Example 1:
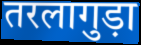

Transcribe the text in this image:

तरलागुड़ा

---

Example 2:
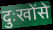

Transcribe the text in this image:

दुःखोंसे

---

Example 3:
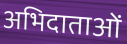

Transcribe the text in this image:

अभिदाताओं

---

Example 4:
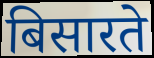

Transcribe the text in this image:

बिसारते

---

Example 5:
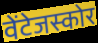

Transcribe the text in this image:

वेंटेजस्कोर